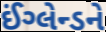
ઈંગ્લેન્ડને